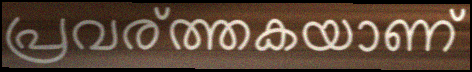
പ്രവര്ത്തകയാണ്